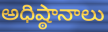
అధిష్ఠానాలు